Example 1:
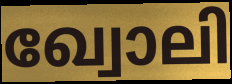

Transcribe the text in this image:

ഖ്വോലി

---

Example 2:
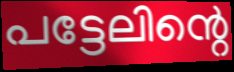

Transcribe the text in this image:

പട്ടേലിന്റെ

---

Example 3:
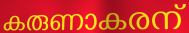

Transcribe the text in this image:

കരുണാകരന്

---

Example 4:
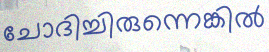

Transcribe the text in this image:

ചോദിച്ചിരുന്നെങ്കിൽ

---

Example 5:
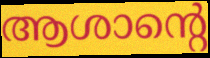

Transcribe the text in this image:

ആശാന്റെ